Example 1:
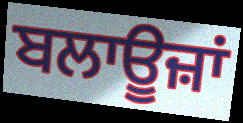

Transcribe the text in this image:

ਬਲਾਊਜ਼ਾਂ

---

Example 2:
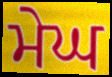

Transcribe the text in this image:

ਮੇਘ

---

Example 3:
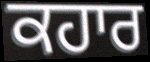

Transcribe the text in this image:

ਕਹਾਰ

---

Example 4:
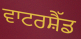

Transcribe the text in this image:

ਵਾਟਰਸ਼ੈੱਡ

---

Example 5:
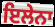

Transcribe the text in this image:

ਇਲੇਨਾ